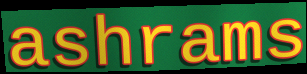
ashrams